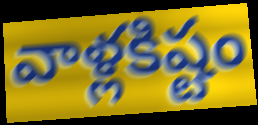
వాళ్లకిష్టం